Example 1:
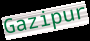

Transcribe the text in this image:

Gazipur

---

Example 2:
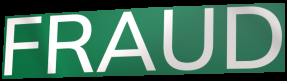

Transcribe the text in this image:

FRAUD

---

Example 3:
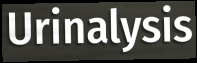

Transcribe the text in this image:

Urinalysis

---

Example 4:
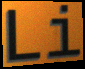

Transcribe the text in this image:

Li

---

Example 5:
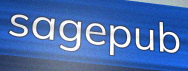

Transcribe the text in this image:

sagepub